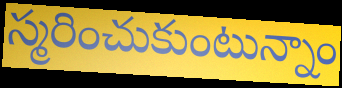
స్మరించుకుంటున్నాం